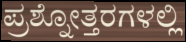
ಪ್ರಶ್ನೋತ್ತರಗಳಲ್ಲಿ